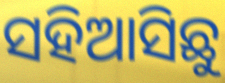
ସହିଆସିଛୁ